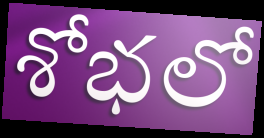
శోభలో